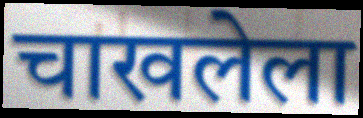
चाखलेला